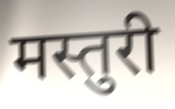
मस्तुरी